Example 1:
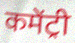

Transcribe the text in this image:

कमेंट्री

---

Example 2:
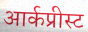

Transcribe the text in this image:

आर्कप्रीस्ट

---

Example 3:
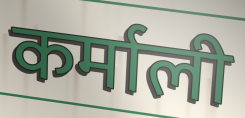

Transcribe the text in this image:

कर्माली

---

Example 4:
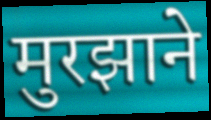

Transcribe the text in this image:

मुरझाने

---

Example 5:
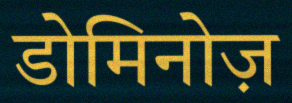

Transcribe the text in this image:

डोमिनोज़